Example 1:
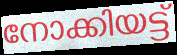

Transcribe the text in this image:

നോക്കിയട്ട്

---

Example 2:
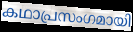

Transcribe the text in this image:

കഥാപ്രസംഗമായി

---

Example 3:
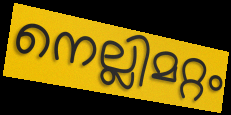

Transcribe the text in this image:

നെല്ലിമറ്റം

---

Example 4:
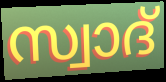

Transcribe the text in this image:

സ്വാദ്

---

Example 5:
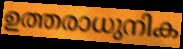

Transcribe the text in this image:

ഉത്തരാധുനിക